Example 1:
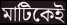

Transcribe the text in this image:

মাটিকেই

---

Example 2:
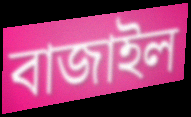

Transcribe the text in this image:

বাজাইল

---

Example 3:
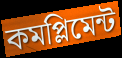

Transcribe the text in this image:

কমপ্লিমেন্ট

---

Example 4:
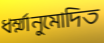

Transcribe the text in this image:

ধর্ম্মানুমোদিত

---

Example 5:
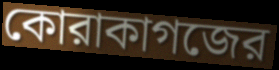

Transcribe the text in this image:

কোরাকাগজের